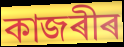
কাজৰীৰ